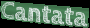
Cantata